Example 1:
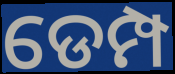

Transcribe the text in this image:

ଡେମ୍ପ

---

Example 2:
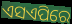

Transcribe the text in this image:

ଏସଏପିରେ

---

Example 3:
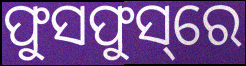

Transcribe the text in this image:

ଫୁସଫୁସ୍‌ରେ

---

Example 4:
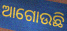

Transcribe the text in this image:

ଆଗୋଉଛି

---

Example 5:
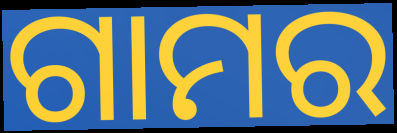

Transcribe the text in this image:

ଗାମର